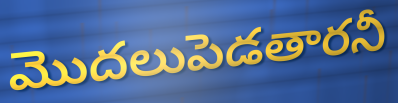
మొదలుపెడతారనీ